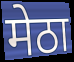
मेठा